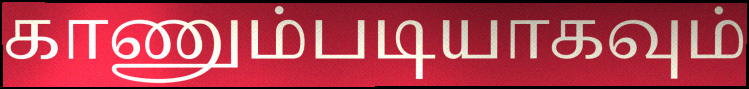
காணும்படியாகவும்